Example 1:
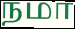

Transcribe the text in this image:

நமா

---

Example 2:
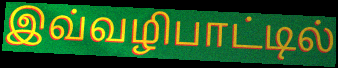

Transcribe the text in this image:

இவ்வழிபாட்டில்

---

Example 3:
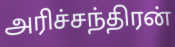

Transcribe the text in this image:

அரிச்சந்திரன்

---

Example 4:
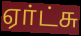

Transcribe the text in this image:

ஏர்ட்சு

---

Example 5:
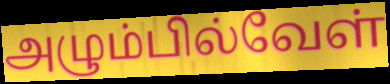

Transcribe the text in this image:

அழும்பில்வேள்